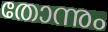
തോന്നും